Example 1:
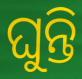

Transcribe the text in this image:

ଘୁନ୍ତି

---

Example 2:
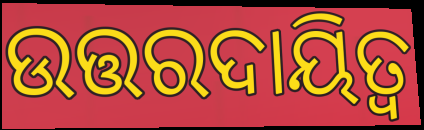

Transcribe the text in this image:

ଉତ୍ତରଦାୟିତ୍ଵ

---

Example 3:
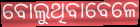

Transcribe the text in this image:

ବୋଲୁଥିବାବେଳେ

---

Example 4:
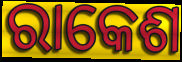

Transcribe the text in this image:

ରାକେଶ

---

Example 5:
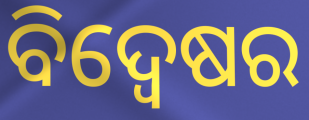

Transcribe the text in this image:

ବିଦ୍ବେଷର